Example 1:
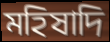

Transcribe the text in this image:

মহিষাদি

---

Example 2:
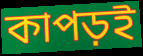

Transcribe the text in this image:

কাপড়ই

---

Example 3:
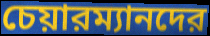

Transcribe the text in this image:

চেয়ারম্যানদের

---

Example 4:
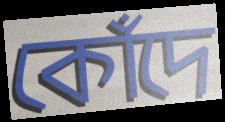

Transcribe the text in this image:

কোঁদে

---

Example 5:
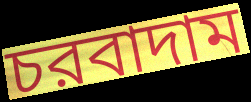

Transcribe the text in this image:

চরবাদাম